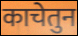
काचेतुन